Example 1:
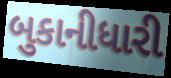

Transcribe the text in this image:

બુકાનીધારી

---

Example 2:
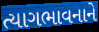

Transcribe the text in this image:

ત્યાગભાવનાને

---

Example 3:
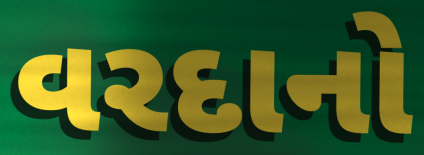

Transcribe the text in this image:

વરદાનો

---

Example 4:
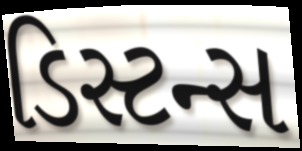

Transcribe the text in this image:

ડિસ્ટન્સ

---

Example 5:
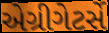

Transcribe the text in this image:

એગ્રીગેટર્સે